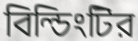
বিল্ডিংটির